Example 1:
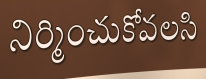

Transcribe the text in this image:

నిర్మించుకోవలసి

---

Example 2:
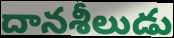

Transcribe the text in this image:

దానశీలుడు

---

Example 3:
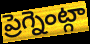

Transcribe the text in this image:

ప్రెగ్నెంట్గా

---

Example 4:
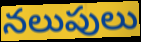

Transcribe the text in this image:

నలుపులు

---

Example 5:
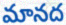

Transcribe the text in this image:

మానద